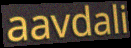
aavdali